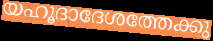
യഹൂദാദേശത്തേക്കു